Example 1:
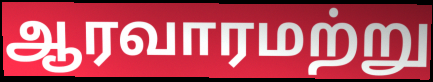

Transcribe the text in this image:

ஆரவாரமற்று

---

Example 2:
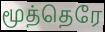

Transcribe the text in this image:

மூத்தெரே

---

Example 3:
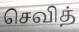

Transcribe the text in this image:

செவித்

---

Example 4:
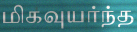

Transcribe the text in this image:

மிகவுயர்ந்த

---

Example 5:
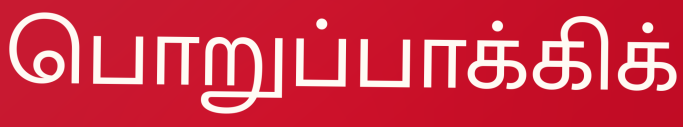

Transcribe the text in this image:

பொறுப்பாக்கிக்